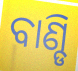
ବାଣ୍ଡି